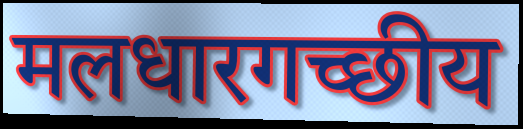
मलधारगच्छीय